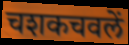
चशकचवलें